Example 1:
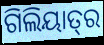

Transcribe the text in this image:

ଗିଲିୟାତ୍‍ର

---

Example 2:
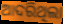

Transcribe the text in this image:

ଆଦରିଥିଲା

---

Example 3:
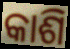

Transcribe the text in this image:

କାଶି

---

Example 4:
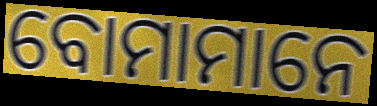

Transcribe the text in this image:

ବୋମାମାନେ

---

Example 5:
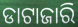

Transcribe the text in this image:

ଡାଟାଜାରି